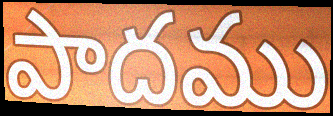
పాదము